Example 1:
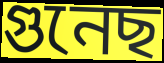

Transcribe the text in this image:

গুনেছ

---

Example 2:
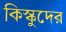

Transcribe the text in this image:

কিস্কুদের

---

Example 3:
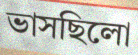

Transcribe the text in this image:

ভাসছিলো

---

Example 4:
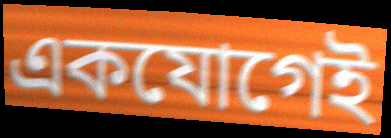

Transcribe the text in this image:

একযোগেই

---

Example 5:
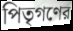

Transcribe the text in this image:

পিতৃগণের